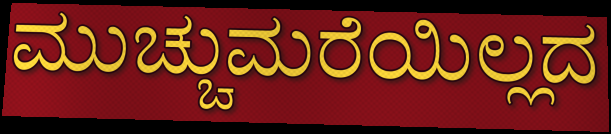
ಮುಚ್ಚುಮರೆಯಿಲ್ಲದ